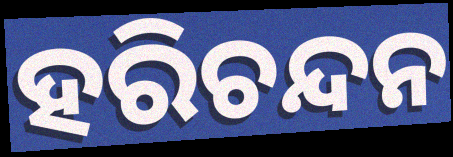
ହରିଚନ୍ଦନ